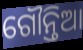
ଗୌନ୍ତିଆ